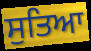
ਸੁਤਿਆ